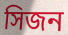
সিজন